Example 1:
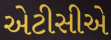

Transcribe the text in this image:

એટીસીએ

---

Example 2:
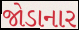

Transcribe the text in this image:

જોડાનાર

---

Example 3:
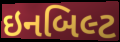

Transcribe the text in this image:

ઇનબિલ્ટ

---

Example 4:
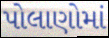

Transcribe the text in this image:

પોલાણોમાં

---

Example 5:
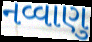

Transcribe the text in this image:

નવ્વાણુ